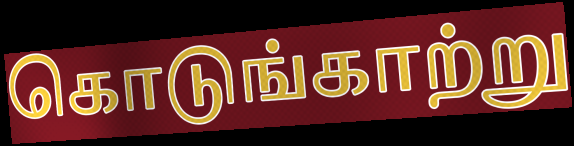
கொடுங்காற்று